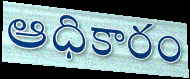
ఆధికారం